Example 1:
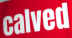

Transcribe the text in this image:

calved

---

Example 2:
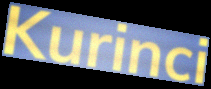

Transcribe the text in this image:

Kurinci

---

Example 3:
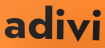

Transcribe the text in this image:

adivi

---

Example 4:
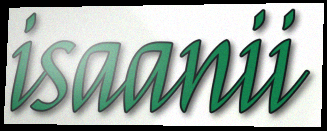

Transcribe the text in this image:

isaanii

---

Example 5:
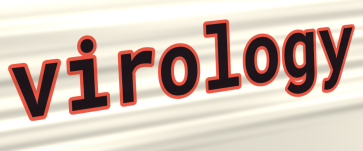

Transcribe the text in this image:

virology